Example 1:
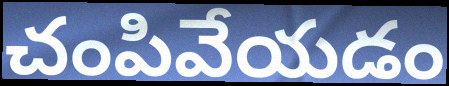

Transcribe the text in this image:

చంపివేయడం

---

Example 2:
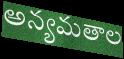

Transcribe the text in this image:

అన్యమతాల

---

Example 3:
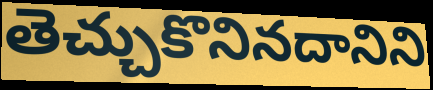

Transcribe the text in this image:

తెచ్చుకొనినదానిని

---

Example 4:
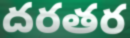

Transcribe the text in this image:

దరతర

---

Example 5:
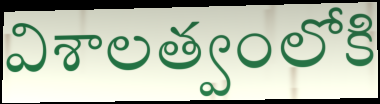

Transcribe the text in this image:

విశాలత్వంలోకి